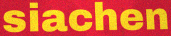
siachen